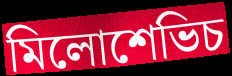
মিলোশেভিচ